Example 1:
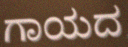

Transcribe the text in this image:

ಗಾಯದ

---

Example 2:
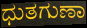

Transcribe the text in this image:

ಧುತಗುಣಾ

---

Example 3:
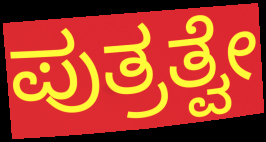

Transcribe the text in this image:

ಪುತ್ರತ್ವೇ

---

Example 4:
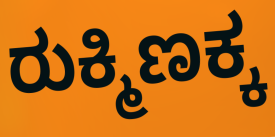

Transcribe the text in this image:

ರುಕ್ಮಿಣಕ್ಕ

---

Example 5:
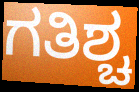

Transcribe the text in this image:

ಗತಿಶ್ಚ